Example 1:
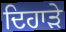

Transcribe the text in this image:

ਦਿਹਾਡ਼ੇ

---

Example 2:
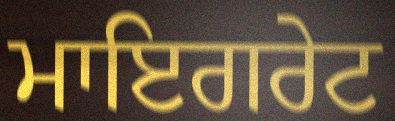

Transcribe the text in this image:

ਮਾਇਗਰੇਟ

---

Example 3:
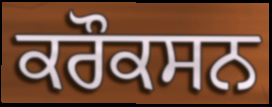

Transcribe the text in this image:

ਕਰੌਕਸਨ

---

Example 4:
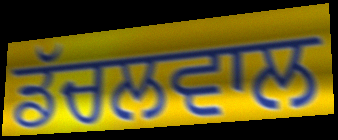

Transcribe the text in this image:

ਡੱਚਲਵਾਲ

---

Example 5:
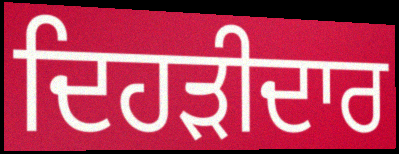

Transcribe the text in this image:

ਦਿਹੜੀਦਾਰ